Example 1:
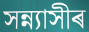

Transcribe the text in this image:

সন্ন্যাসীৰ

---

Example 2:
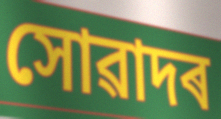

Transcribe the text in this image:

সোৱাদৰ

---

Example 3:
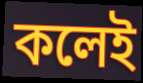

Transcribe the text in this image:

কলেই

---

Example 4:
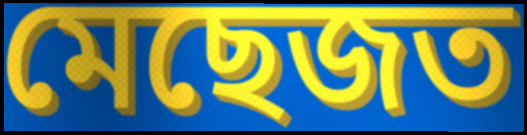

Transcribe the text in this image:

মেছেজত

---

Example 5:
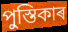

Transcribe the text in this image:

পুস্তিকাৰ